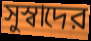
সুস্বাদের